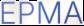
EPMA